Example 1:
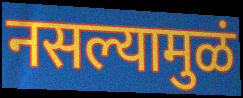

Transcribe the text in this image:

नसल्यामुळं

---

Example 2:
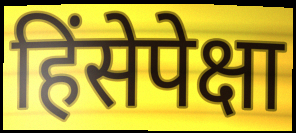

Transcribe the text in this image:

हिंसेपेक्षा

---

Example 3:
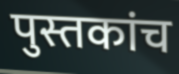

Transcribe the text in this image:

पुस्तकांच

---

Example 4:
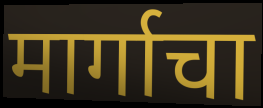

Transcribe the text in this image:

मार्गाचा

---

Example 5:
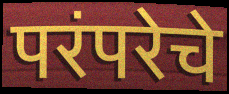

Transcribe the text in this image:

परंपरेचे